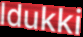
Idukki